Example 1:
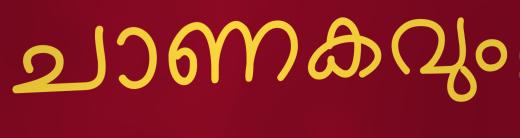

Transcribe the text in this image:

ചാണകവും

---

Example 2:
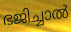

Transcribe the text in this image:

ഭജിച്ചാൽ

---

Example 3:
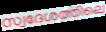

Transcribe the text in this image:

സ്വദേശത്തിലെ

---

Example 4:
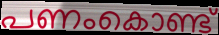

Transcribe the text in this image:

പണംകൊണ്ട്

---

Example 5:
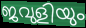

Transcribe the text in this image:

ജവുളിയും